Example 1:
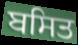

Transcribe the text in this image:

ਬਸਿਤ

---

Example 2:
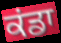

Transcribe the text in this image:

ਕਂਡਾ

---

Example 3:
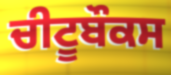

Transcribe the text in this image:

ਚੀਟੂਬੌਕਸ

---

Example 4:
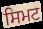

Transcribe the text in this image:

ਸਿਮਟ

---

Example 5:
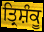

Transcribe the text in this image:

ਤ੍ਰਿਸ਼ੰਕੂ